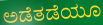
ಅಡೆತಡೆಯೂ